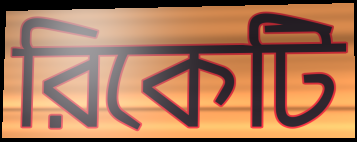
রিকেটি